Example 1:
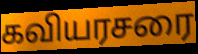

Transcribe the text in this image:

கவியரசரை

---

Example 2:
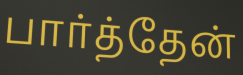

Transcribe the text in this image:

பார்த்தேன்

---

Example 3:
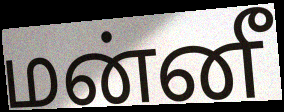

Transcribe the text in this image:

மன்னீ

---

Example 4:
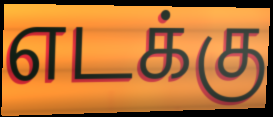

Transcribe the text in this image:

எடக்கு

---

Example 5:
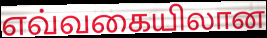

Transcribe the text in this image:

எவ்வகையிலான